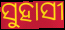
ସୁହାସୀ